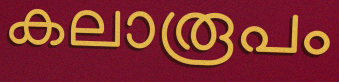
കലാരൂപം